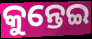
କୁନ୍ତେଇ